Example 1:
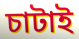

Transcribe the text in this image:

চাটাই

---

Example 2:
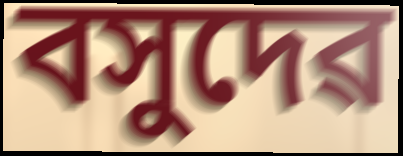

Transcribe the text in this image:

বসুদেৱ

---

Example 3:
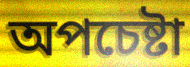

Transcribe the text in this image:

অপচেষ্টা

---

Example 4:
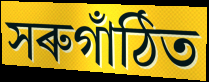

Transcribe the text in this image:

সৰুগাঁঠিত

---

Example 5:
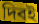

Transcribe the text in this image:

দিবই